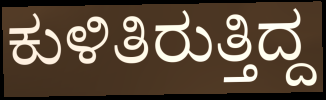
ಕುಳಿತಿರುತ್ತಿದ್ದ